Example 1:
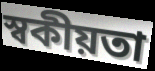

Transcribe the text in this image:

স্বকীয়তা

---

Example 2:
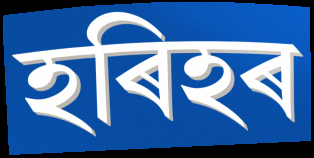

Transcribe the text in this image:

হৰিহৰ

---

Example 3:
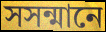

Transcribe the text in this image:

সসন্মানে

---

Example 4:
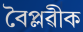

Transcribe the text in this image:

বৈপ্লৱীক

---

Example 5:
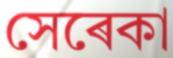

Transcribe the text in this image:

সেৰেকা